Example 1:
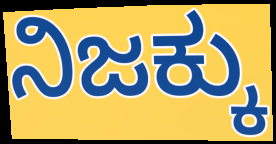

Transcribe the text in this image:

ನಿಜಕ್ಕು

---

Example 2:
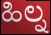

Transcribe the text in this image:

ಹಿಲ್ನ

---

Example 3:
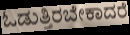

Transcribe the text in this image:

ಓಡುತ್ತಿರಬೇಕಾದರೆ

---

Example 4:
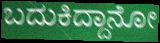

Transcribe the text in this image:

ಬದುಕಿದ್ದಾನೋ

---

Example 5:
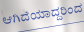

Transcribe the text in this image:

ಆಗಿದೆಯಾದ್ದರಿಂದ